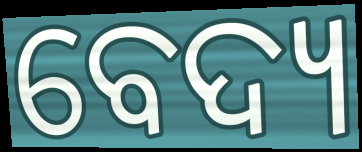
ବେଦ୍ୟ